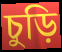
চুড়ি